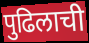
पुढिलाची